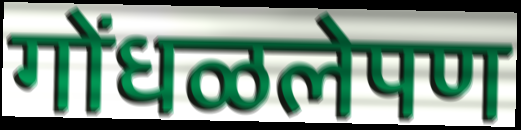
गोंधळलेपण